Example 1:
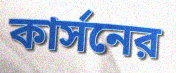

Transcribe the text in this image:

কার্সনের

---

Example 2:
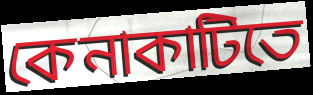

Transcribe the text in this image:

কেনাকাটিতে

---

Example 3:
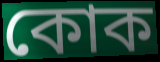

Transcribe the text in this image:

কোক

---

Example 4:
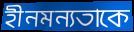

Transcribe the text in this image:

হীনমন্যতাকে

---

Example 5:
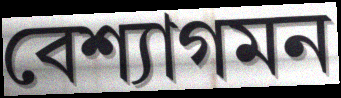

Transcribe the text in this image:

বেশ্যাগমন